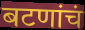
बटणांचं